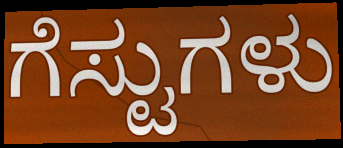
ಗೆಸ್ಟುಗಳು